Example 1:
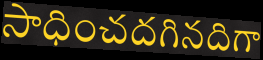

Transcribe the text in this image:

సాధించదగినదిగా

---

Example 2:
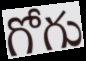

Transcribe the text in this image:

గోగు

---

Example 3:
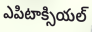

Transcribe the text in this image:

ఎపిటాక్సియల్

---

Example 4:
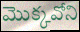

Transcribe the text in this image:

మొక్కవోని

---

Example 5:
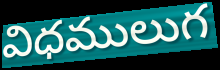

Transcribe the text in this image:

విధములుగ